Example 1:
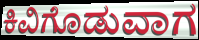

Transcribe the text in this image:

ಕಿವಿಗೊಡುವಾಗ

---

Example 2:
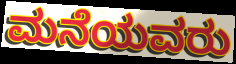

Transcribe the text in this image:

ಮನೆಯವರು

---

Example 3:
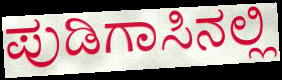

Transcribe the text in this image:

ಪುಡಿಗಾಸಿನಲ್ಲಿ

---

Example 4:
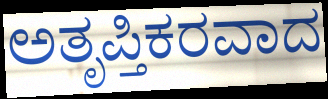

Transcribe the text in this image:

ಅತೃಪ್ತಿಕರವಾದ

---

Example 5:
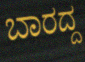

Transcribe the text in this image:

ಬಾರದ್ದ